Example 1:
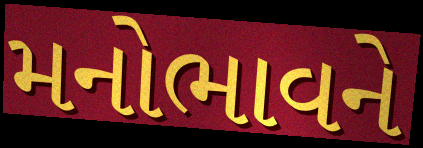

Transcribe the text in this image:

મનોભાવને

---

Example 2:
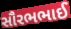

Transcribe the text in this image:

સૌરભભાઈ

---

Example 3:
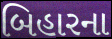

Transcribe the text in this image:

બિહારના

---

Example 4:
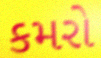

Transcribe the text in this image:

કમરો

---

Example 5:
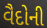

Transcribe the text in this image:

વૈદોની